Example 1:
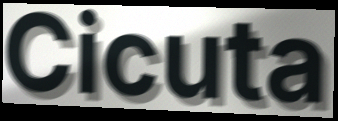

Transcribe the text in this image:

Cicuta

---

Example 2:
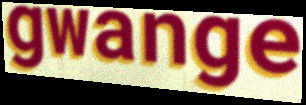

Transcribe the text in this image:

gwange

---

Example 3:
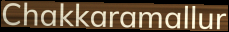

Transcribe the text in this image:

Chakkaramallur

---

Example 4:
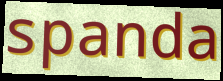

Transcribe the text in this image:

spanda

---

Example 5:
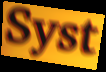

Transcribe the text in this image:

Syst